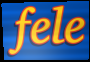
fele